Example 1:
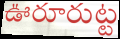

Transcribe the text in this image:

ఊరూరుట్ట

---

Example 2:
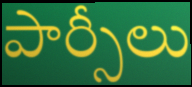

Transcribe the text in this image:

పార్సీలు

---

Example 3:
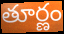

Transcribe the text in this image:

తూర్ణం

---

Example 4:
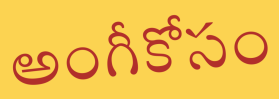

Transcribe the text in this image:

అంగీకోసం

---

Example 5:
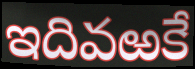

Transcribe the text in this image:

ఇదివఱకే